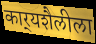
कार्यशैलीला